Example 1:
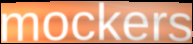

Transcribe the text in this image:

mockers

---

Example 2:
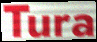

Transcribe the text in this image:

Tura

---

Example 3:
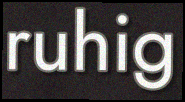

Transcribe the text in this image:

ruhig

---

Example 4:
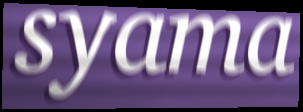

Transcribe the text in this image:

syama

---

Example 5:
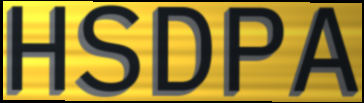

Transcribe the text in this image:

HSDPA